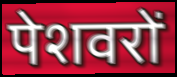
पेशवरों